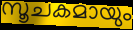
സൂചകമായും